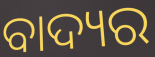
ବାଦ୍ୟର